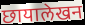
छायालेखन